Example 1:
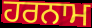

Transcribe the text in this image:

ਹਰਨਾਮ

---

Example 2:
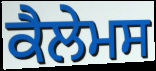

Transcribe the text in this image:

ਕੈਲੇਮਸ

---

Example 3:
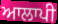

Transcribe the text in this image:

ਆਲਾਪੀ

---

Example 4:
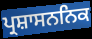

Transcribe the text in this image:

ਪ੍ਰਸ਼ਾਸਨਨਿਕ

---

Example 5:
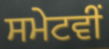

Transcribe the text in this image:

ਸਮੇਟਵੀਂ